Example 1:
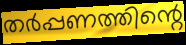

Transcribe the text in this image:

തർപ്പണത്തിന്റെ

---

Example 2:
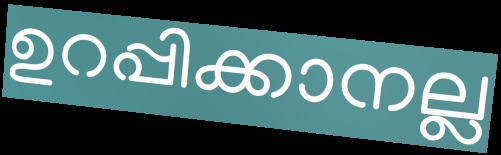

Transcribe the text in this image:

ഉറപ്പിക്കാനല്ല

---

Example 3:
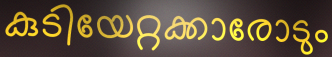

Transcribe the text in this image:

കുടിയേറ്റക്കാരോടും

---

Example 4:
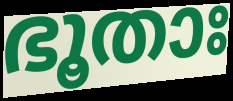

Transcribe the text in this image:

ഭൂതാഃ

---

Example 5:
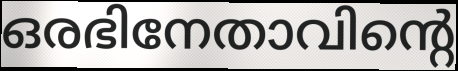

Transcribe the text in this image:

ഒരഭിനേതാവിന്റെ